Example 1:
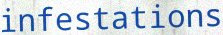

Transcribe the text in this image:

infestations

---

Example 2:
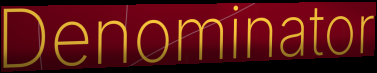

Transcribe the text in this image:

Denominator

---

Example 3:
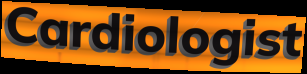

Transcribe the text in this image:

Cardiologist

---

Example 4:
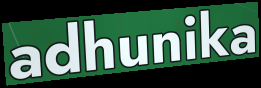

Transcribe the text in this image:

adhunika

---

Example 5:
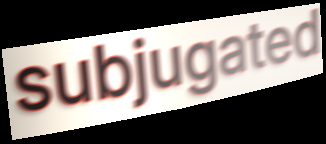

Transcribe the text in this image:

subjugated